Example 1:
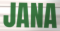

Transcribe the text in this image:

JANA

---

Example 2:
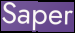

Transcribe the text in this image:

Saper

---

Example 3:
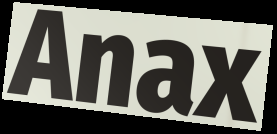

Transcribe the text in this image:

Anax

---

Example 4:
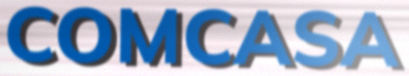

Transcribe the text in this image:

COMCASA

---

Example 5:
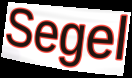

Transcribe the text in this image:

Segel